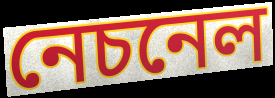
নেচনেল